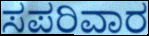
ಸಪರಿವಾರ